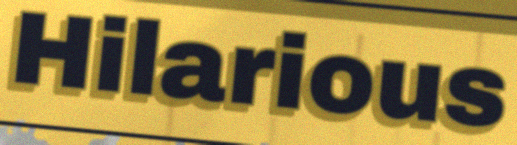
Hilarious